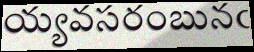
య్యవసరంబునఁ